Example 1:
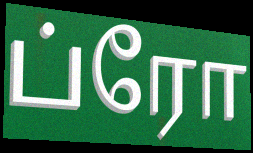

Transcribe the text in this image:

ப்ரோ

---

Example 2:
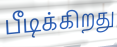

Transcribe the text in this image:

பீடிக்கிறது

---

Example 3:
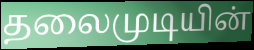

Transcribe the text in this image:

தலைமுடியின்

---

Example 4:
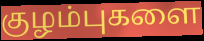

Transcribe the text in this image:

குழம்புகளை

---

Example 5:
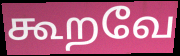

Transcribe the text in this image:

கூறவே